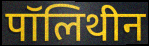
पॉलिथीन